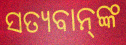
ସତ୍ୟବାନ୍‌ଙ୍କ